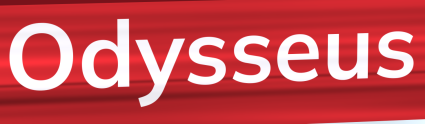
Odysseus